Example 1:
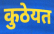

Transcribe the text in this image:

कुठेयत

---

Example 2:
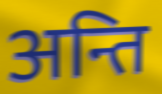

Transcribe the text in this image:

अन्ति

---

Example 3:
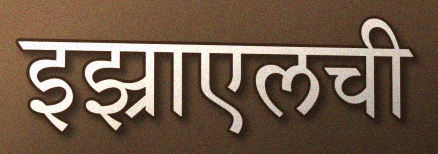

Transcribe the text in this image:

इझ्राएलची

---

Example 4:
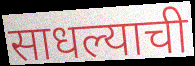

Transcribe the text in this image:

साधल्याची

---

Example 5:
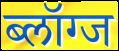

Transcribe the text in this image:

ब्लॉग्ज